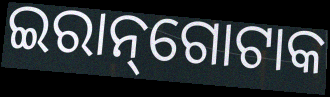
ଇରାନ୍‌ଗୋଟାକ